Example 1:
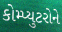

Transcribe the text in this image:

કોમ્પ્યુટરોને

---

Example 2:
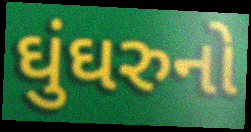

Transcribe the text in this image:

ઘુંઘરુનો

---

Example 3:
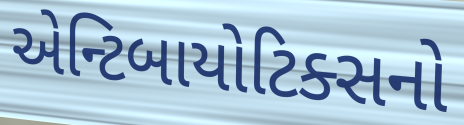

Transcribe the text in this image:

એન્ટિબાયોટિક્સનો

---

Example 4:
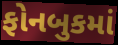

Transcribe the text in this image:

ફોનબુકમાં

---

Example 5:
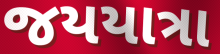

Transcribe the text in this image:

જયયાત્રા